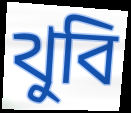
থুবি